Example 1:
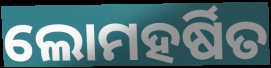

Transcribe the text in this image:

ଲୋମହର୍ଷିତ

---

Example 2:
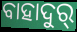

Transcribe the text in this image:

ବାହାଦୁର୍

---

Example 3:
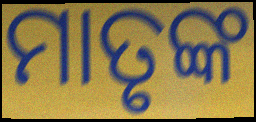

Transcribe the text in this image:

ମାତୃଙ୍କ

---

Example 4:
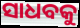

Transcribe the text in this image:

ସାଧବକୁ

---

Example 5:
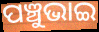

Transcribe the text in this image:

ପଞ୍ଚୁଭାଇ